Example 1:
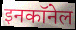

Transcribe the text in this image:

इनकॉनेल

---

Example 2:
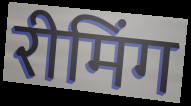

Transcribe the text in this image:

रीमिंग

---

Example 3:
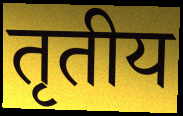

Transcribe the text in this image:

तृतीय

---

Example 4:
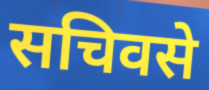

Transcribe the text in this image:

सचिवसे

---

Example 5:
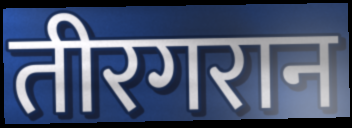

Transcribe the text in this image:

तीरगरान